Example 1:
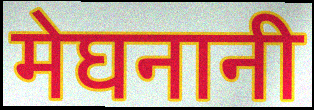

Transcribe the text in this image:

मेघनानी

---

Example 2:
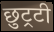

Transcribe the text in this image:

छुट्रटी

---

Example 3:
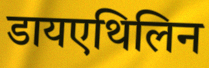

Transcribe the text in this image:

डायएथिलिन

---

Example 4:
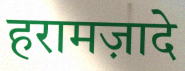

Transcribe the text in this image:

हरामज़ादे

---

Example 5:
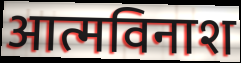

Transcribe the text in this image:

आत्मविनाश